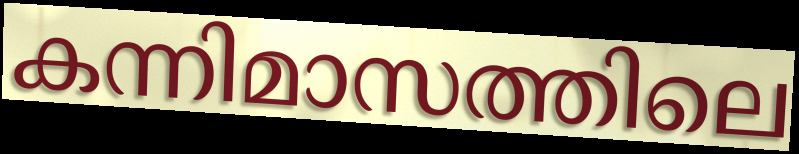
കന്നിമാസത്തിലെ